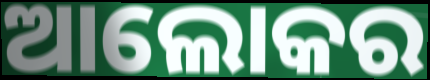
ଆଲୋକର